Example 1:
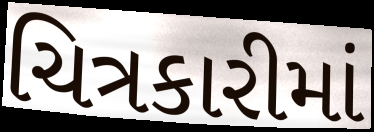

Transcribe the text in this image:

ચિત્રકારીમાં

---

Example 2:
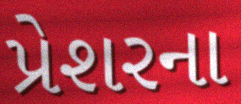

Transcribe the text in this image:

પ્રેશરના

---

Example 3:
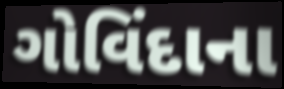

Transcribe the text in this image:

ગોવિંદાના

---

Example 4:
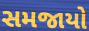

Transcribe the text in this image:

સમજાયો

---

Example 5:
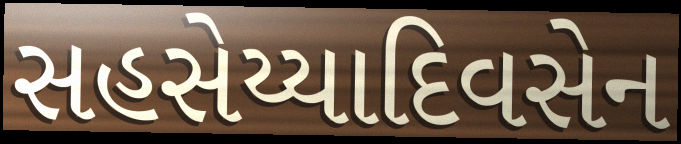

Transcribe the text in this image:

સહસેય્યાદિવસેન